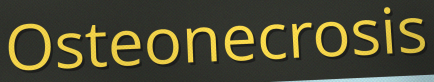
Osteonecrosis